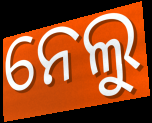
ନେଲୁ